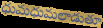
ధుమధుమలాడుతూ